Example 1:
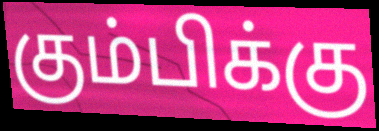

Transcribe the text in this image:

கும்பிக்கு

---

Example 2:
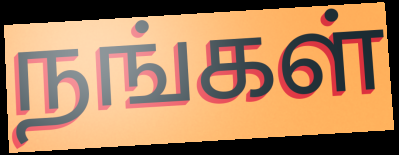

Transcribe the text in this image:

நங்கள்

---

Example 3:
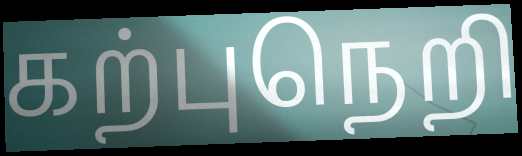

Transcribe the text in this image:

கற்புநெறி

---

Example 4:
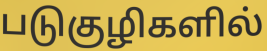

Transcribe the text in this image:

படுகுழிகளில்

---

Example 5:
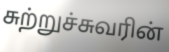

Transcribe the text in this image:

சுற்றுச்சுவரின்